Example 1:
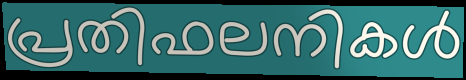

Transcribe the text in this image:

പ്രതിഫലനികൾ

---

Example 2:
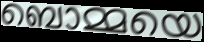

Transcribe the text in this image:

ബൊമ്മയെ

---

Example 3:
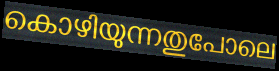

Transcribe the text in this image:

കൊഴിയുന്നതുപോലെ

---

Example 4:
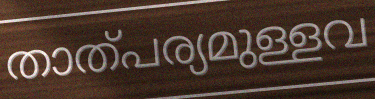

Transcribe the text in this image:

താത്പര്യമുള്ളവ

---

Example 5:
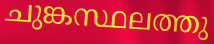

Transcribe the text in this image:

ചുങ്കസ്ഥലത്തു